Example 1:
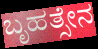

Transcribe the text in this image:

ಬೃಹತ್ಸೇನ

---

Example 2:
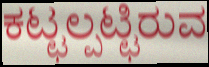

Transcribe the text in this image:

ಕಟ್ಟಲ್ಪಟ್ಟಿರುವ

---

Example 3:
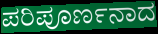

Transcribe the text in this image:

ಪರಿಪೂರ್ಣನಾದ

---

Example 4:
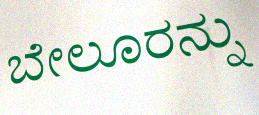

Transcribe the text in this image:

ಬೇಲೂರನ್ನು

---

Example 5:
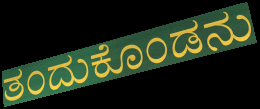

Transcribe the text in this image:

ತಂದುಕೊಂಡನು